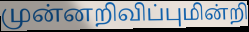
முன்னறிவிப்புமின்றி